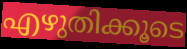
എഴുതിക്കൂടെ